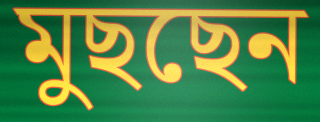
মুছছেন